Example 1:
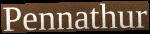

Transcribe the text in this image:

Pennathur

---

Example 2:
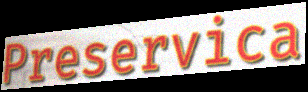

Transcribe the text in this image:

Preservica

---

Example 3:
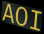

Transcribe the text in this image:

AOI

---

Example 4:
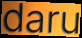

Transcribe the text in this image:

daru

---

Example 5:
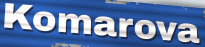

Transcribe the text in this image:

Komarova